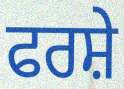
ਫਰਸ਼ੇ